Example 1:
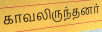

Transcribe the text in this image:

காவலிருந்தனர்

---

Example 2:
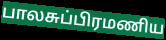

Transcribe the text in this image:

பாலசுப்பிரமணிய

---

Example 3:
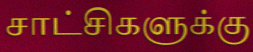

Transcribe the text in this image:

சாட்சிகளுக்கு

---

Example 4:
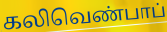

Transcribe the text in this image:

கலிவெண்பாப்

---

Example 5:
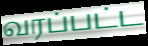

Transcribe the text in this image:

வரப்பட்ட